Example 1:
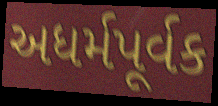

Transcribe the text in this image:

અધર્મપૂર્વક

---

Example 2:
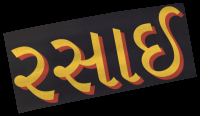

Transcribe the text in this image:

રસાઈ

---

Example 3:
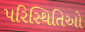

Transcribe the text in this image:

પરિસ્થિતિઓ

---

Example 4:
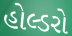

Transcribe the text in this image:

હોલ્ડરો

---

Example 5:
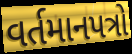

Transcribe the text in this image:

વર્તમાનપત્રો